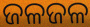
ଜଳଜଳ